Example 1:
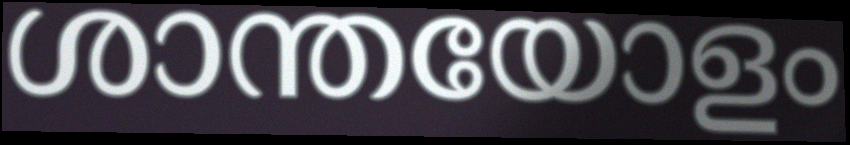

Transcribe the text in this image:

ശാന്തയോളം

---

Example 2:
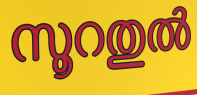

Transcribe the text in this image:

സൂറതുൽ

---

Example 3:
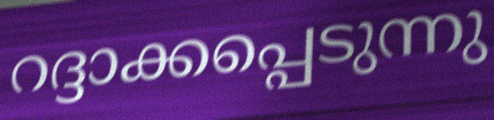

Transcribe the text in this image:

റദ്ദാക്കപ്പെടുന്നു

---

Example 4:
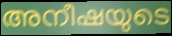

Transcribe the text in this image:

അനീഷയുടെ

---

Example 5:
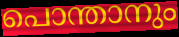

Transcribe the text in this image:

പൊന്താനും